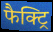
फैक्ट्रि